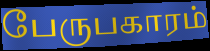
பேருபகாரம்